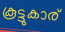
കൂട്ടുകാര്